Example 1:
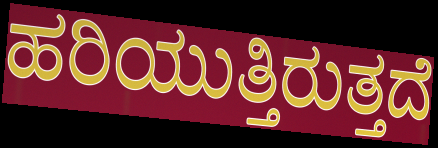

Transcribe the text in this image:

ಹರಿಯುತ್ತಿರುತ್ತದೆ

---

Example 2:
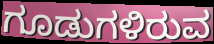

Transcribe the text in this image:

ಗೂಡುಗಳಿರುವ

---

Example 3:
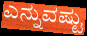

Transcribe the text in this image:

ಎನ್ನುವಷ್ಟು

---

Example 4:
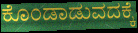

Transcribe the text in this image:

ಕೊಂಡಾಡುವದಕ್ಕೆ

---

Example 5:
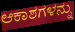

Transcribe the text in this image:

ಆಕಾಶಗಳನ್ನು